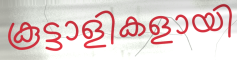
കൂട്ടാളികളായി